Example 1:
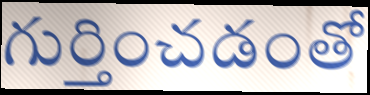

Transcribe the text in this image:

గుర్తించడంతో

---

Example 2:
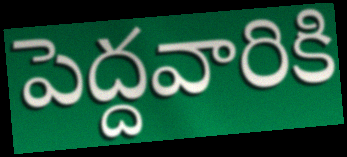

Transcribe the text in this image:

పెద్దవారికి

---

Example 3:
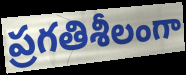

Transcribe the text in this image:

ప్రగతిశీలంగా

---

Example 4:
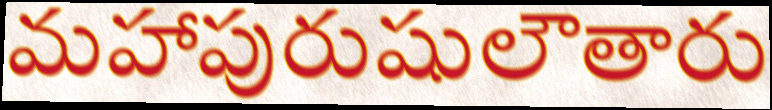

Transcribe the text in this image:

మహాపురుషులౌతారు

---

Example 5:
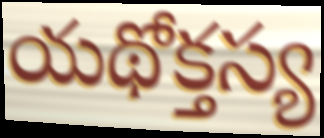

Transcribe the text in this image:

యథోక్తస్య